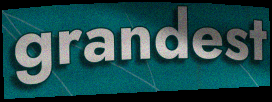
grandest